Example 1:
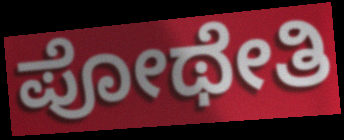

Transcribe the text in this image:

ಪೋಥೇತಿ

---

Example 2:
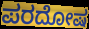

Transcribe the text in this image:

ಪರದೋಷ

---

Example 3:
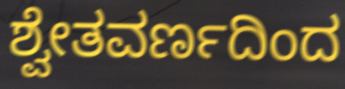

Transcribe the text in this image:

ಶ್ವೇತವರ್ಣದಿಂದ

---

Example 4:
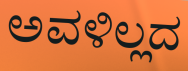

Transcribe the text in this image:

ಅವಳಿಲ್ಲದ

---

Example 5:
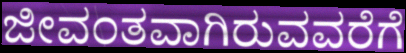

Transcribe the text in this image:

ಜೀವಂತವಾಗಿರುವವರೆಗೆ